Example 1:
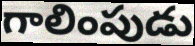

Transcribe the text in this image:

గాలింపుడు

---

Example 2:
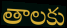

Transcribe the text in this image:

తాలకు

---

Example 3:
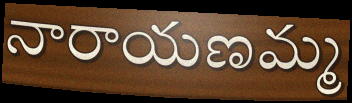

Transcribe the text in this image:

నారాయణమ్మ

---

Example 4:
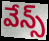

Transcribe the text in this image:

వేన్స్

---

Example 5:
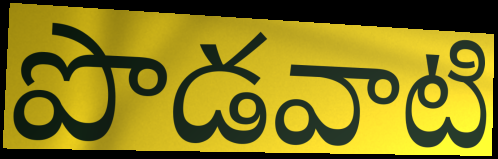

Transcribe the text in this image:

పొడవాటి